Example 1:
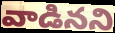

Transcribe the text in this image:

వాడినని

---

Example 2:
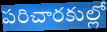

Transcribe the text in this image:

పరిచారకుల్లో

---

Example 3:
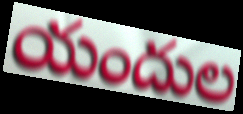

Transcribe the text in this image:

యందుల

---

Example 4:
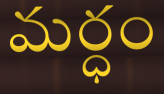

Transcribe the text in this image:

మర్ధం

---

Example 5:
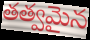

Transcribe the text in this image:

తత్వమైన